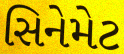
સિનેમેટ